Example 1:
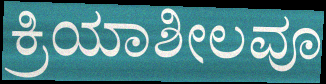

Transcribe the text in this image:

ಕ್ರಿಯಾಶೀಲವೂ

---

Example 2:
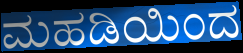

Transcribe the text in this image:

ಮಹಡಿಯಿಂದ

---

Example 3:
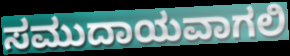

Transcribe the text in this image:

ಸಮುದಾಯವಾಗಲಿ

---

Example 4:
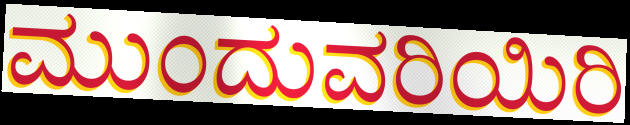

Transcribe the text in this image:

ಮುಂದುವರಿಯಿರಿ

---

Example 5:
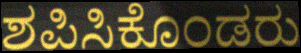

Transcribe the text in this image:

ಶಪಿಸಿಕೊಂಡರು